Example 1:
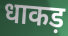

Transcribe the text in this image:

धाकड़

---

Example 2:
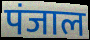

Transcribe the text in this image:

पंजाल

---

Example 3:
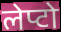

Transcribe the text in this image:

लेप्टो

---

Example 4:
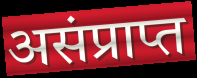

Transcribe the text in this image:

असंप्राप्त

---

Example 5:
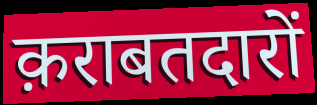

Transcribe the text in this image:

क़राबतदारों